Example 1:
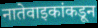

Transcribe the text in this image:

नातेवाइकांकडून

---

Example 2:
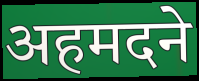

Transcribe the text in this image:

अहमदने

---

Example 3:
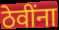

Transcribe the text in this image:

ठेवींना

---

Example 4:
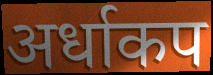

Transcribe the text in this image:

अर्धाकप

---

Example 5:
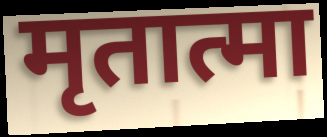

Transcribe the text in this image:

मृतात्मा